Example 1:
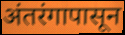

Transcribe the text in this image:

अंतरंगापासून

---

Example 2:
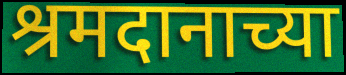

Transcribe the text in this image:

श्रमदानाच्या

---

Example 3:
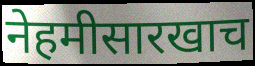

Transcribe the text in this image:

नेहमीसारखाच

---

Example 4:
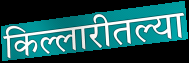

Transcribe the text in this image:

किल्लारीतल्या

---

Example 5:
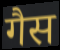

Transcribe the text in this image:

गैस